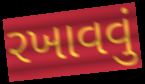
રખાવવું